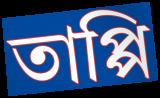
তাপ্পি